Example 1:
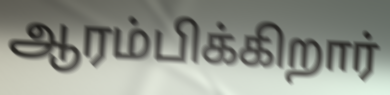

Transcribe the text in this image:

ஆரம்பிக்கிறார்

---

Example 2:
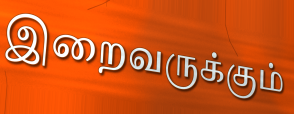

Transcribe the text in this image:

இறைவருக்கும்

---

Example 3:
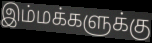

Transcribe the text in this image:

இம்மக்களுக்கு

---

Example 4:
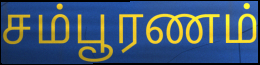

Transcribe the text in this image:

சம்பூரணம்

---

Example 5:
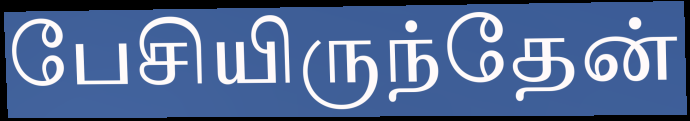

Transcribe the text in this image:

பேசியிருந்தேன்